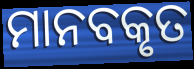
ମାନବକୃତ